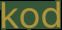
kod